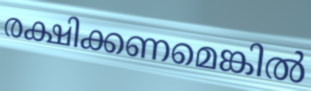
രക്ഷിക്കണമെങ്കിൽ